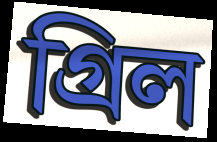
গ্রিল